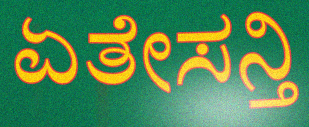
ಏತೇಸನ್ತಿ